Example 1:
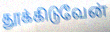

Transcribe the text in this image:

தூக்கிடுவேன்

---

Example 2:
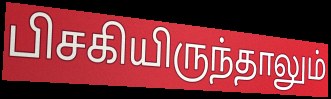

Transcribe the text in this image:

பிசகியிருந்தாலும்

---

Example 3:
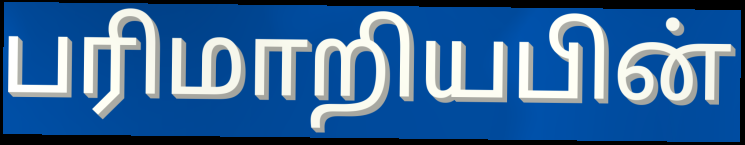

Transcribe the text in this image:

பரிமாறியபின்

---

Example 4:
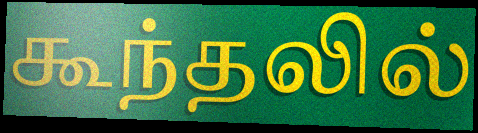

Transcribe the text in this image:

கூந்தலில்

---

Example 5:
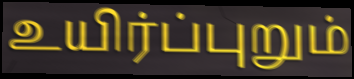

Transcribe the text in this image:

உயிர்ப்புறும்